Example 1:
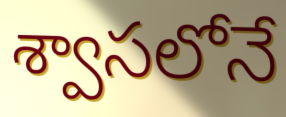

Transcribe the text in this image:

శ్వాసలోనే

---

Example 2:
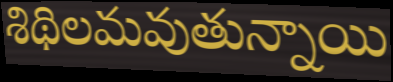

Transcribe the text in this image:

శిథిలమవుతున్నాయి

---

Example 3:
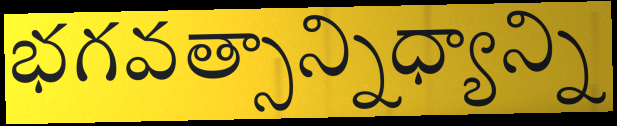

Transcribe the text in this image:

భగవత్సాన్నిధ్యాన్ని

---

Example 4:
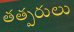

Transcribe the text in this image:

తత్పరులు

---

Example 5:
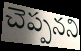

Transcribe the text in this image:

చెప్పనని